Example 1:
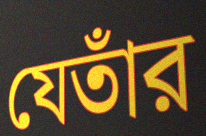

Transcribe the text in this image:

যেতাঁর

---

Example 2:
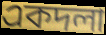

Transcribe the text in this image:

একদলা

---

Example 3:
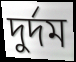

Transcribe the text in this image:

দুর্দম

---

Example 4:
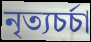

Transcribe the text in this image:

নৃত্যচর্চা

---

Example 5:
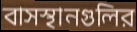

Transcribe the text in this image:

বাসস্থানগুলির